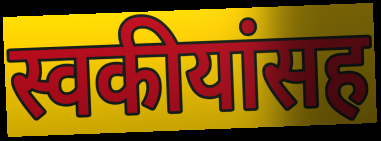
स्वकीयांसह